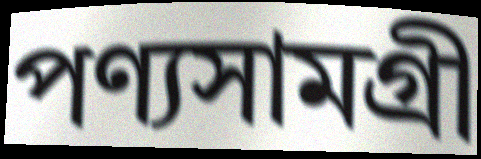
পণ্যসামগ্রী